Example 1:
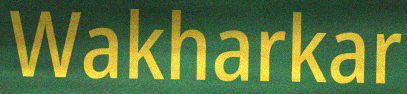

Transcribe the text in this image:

Wakharkar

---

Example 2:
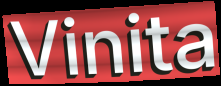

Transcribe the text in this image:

Vinita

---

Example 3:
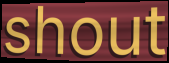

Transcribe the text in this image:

shout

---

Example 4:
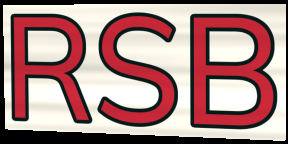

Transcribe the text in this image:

RSB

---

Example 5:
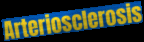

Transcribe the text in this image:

Arteriosclerosis